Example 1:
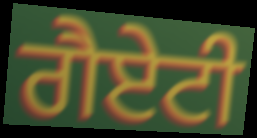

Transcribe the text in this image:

ਗੈਏਟੀ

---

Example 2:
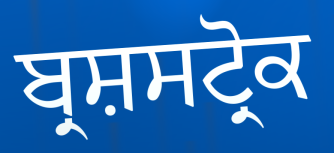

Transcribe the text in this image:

ਬ੍ਰਸ਼ਸਟ੍ਰੋਕ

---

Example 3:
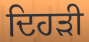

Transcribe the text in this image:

ਦਿਹੜੀ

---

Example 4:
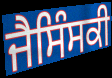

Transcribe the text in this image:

ਜੈਸਿੰਸਕੀ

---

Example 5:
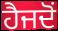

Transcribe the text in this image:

ਹੈਜਦੋਂ